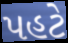
પહટે